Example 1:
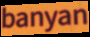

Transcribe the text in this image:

banyan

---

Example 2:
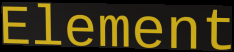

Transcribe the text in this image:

Element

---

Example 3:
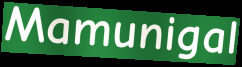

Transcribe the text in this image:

Mamunigal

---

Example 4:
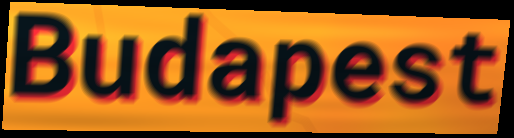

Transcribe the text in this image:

Budapest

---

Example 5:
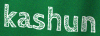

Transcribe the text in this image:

kashun